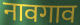
नावगाव